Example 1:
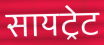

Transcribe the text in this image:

सायट्रेट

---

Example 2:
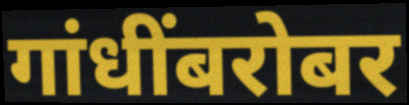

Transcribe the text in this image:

गांधींबरोबर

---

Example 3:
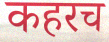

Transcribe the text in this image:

कहरच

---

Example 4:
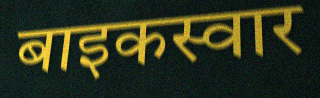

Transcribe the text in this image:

बाइकस्वार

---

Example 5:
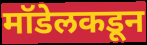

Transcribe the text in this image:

मॉडेलकडून